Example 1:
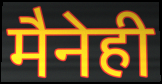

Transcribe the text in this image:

मैनेही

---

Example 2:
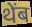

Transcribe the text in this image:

थेंब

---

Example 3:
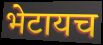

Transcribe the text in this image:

भेटायच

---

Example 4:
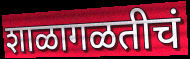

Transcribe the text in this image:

शाळागळतीचं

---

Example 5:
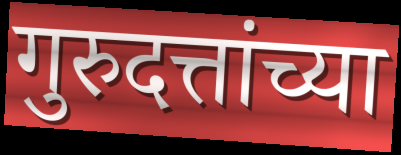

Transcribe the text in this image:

गुरुदत्तांच्या